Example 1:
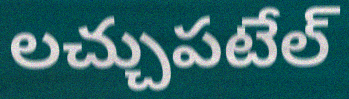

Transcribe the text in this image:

లచ్చుపటేల్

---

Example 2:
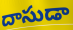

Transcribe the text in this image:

దాసుడా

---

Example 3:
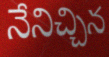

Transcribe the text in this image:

నేనిచ్చిన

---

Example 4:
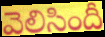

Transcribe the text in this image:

వెలిసిందీ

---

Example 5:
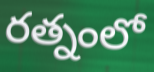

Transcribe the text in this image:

రత్నంలో